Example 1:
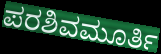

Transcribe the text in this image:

ಪರಶಿವಮೂರ್ತಿ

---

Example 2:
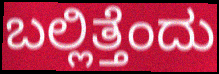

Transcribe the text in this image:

ಬಲ್ಲಿತ್ತೆಂದು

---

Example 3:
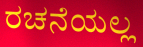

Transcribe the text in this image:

ರಚನೆಯಲ್ಲ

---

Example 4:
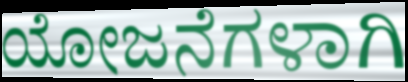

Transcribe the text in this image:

ಯೋಜನೆಗಳಾಗಿ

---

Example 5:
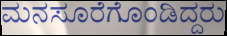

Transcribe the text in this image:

ಮನಸೂರೆಗೊಂಡಿದ್ದರು